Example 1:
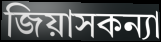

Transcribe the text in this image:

জিয়াসকন্যা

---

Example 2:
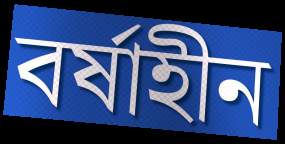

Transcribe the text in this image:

বর্ষাহীন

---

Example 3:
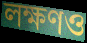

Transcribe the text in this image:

লক্ষণও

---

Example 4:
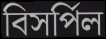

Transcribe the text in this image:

বিসর্পিল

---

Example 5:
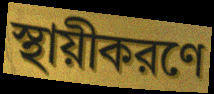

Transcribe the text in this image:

স্থায়ীকরণে